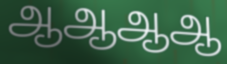
ஆஆஆஆ